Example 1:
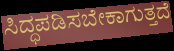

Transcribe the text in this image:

ಸಿದ್ಧಪಡಿಸಬೇಕಾಗುತ್ತದೆ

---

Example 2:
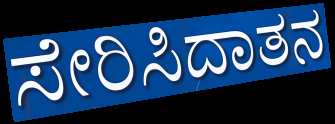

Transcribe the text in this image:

ಸೇರಿಸಿದಾತನ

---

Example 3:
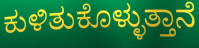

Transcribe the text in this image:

ಕುಳಿತುಕೊಳ್ಳುತ್ತಾನೆ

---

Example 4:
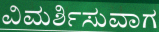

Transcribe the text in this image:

ವಿಮರ್ಶಿಸುವಾಗ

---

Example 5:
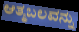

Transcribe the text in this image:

ಆತ್ಮಬಲವನ್ನು